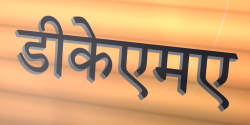
डीकेएमए